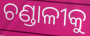
ଚଣ୍ଡାଳୀକୁ